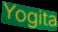
Yogita